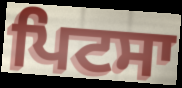
ਪਿਟਸਾ